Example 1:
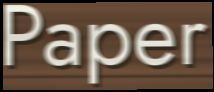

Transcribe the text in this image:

Paper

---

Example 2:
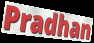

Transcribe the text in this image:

Pradhan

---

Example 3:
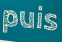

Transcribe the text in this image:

puis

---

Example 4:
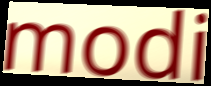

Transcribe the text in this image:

modi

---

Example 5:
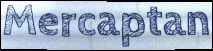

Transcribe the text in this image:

Mercaptan